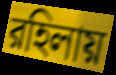
রহিলায়